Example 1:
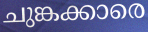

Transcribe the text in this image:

ചുങ്കക്കാരെ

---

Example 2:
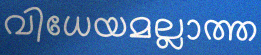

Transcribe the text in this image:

വിധേയമല്ലാത്ത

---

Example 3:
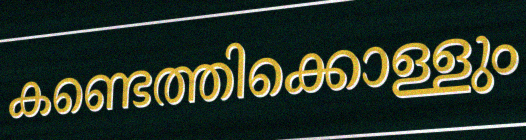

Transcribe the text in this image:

കണ്ടെത്തിക്കൊള്ളും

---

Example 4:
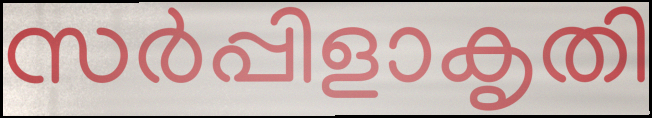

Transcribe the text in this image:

സർപ്പിളാകൃതി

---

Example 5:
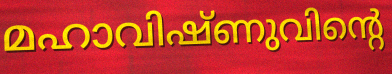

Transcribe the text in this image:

മഹാവിഷ്ണുവിന്റെ